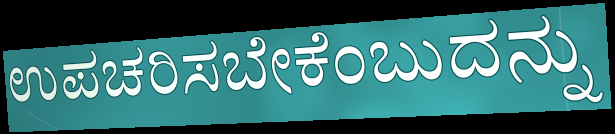
ಉಪಚರಿಸಬೇಕೆಂಬುದನ್ನು